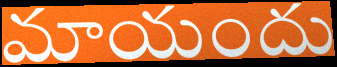
మాయందు